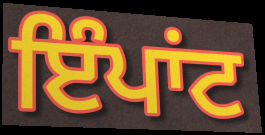
ਇੰਪਾਂਟ